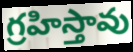
గ్రహిస్తావు